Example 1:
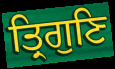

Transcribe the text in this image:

ਤ੍ਰਿਗੁਣਿ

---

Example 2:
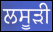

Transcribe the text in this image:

ਲਸੂੜੀ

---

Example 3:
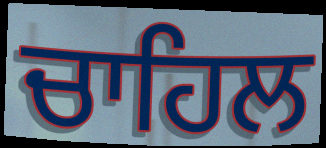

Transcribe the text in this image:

ਚਾਹਿਲ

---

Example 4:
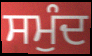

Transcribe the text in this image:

ਸਮੁੰਦ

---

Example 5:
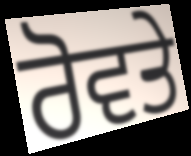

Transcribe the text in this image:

ਰੋਵਤੇ